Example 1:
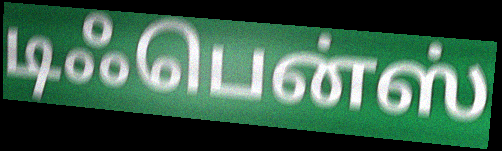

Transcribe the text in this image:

டிஃபென்ஸ்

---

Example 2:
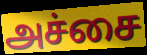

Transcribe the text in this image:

அச்சை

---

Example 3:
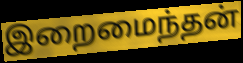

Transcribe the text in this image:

இறைமைந்தன்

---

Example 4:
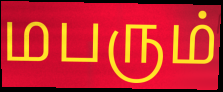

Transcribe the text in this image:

மபரும்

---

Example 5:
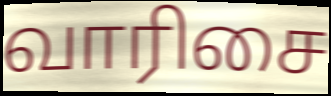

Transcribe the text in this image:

வாரிசை